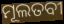
ମୂଲତବୀ